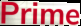
Prime